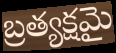
బ్రత్యక్షమై